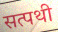
सत्पथी